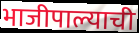
भाजीपाल्याची